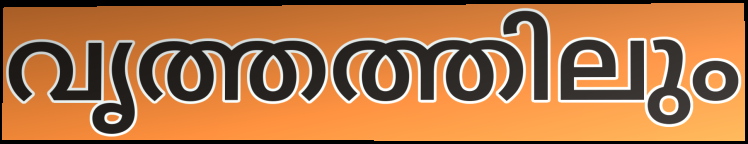
വൃത്തത്തിലും